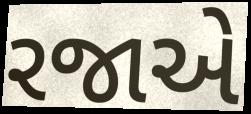
રજાએ